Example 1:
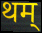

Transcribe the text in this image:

थम्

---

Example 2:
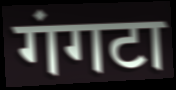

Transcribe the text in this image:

गंगटा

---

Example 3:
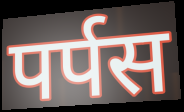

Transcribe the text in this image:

पर्पस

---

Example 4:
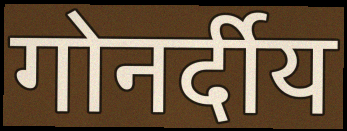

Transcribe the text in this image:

गोनर्दीय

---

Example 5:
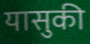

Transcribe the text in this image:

यासुकी